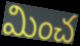
మించ